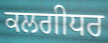
ਕਲਗੀਧਰ